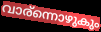
വാര്ന്നൊഴുകും